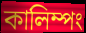
কালিম্পং